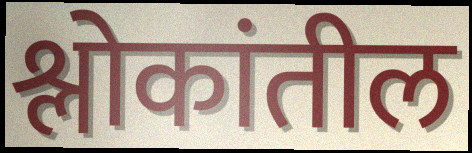
श्लोकांतील